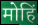
मोहिं